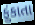
ફુંકાતા